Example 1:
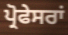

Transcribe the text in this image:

ਪ੍ਰੋਫੇਸਰਾਂ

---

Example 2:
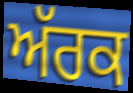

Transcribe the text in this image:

ਅੱਰਕ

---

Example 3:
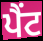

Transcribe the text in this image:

ਪੈਂਟ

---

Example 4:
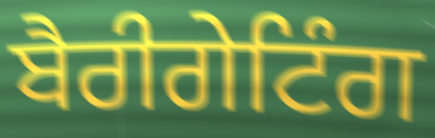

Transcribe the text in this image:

ਬੈਰੀਗੇਟਿੰਗ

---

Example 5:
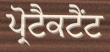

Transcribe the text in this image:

ਪ੍ਰੋਟੈਕਟੈਂਟ